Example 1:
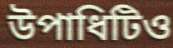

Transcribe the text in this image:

উপাধিটিও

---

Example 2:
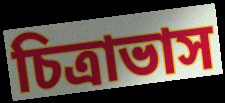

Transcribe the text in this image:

চিত্রাভাস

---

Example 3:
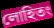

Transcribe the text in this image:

লোহিতং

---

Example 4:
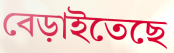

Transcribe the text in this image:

বেড়াইতেছে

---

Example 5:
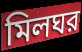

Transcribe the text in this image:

মিলঘর